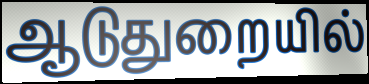
ஆடுதுறையில்